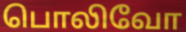
பொலிவோ